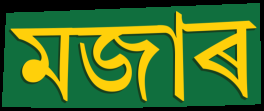
মজাৰ